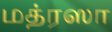
மத்ரஸா